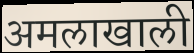
अमलाखाली